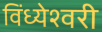
विंध्येश्वरी